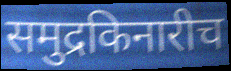
समुद्रकिनारीच